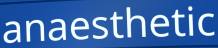
anaesthetic